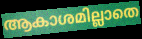
ആകാശമില്ലാതെ